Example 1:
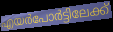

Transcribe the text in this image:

എയർപോർട്ടിലേക്ക്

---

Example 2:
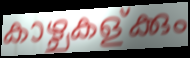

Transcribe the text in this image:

കാഴ്ചകള്ക്കും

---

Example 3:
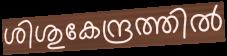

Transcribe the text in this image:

ശിശുകേന്ദ്രത്തിൽ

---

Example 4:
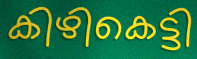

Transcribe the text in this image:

കിഴികെട്ടി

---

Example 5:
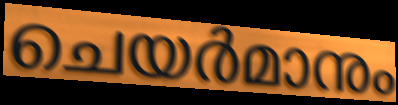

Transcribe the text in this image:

ചെയർമാനും